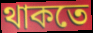
থাকতে